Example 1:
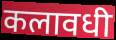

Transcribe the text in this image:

कलावधी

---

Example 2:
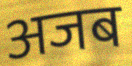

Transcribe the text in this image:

अजब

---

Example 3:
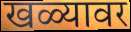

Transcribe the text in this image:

खळ्यावर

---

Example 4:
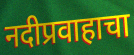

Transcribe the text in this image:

नदीप्रवाहाचा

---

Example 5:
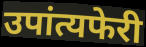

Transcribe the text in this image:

उपांत्यफेरी